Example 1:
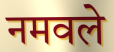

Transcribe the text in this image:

नमवले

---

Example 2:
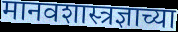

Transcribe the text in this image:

मानवशास्त्रज्ञाच्या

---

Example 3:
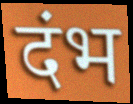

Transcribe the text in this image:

दंभ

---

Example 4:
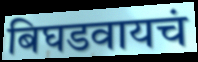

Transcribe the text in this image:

बिघडवायचं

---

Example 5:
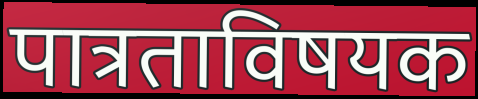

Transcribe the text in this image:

पात्रताविषयक